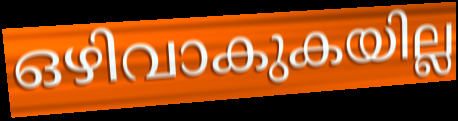
ഒഴിവാകുകയില്ല